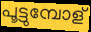
പൂട്ടുമ്പോള്